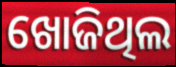
ଖୋଜିଥିଲ